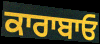
ਕਾਰਾਬਾਓ